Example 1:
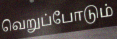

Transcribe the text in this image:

வெறுப்போடும்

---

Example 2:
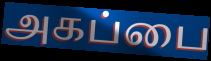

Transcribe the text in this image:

அகப்பை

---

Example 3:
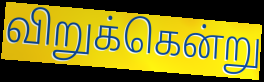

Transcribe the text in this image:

விறுக்கென்று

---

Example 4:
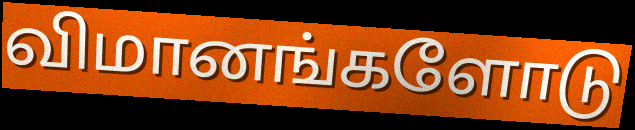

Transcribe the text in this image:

விமானங்களோடு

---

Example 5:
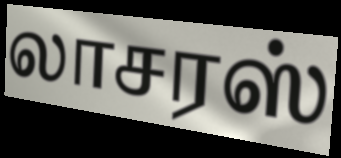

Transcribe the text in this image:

லாசரஸ்